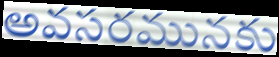
అవసరమునకు